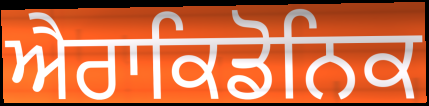
ਐਰਾਕਿਡੋਨਿਕ